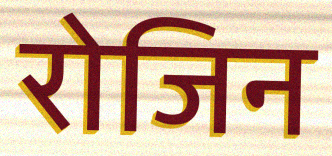
रोजिन